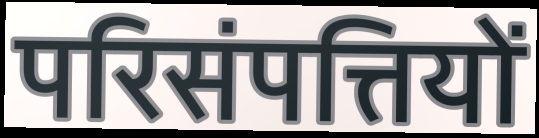
परिसंपत्तियों